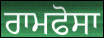
ਰਾਮਫੋਸਾ